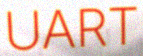
UART